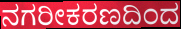
ನಗರೀಕರಣದಿಂದ